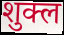
शुक्ल